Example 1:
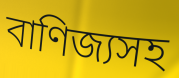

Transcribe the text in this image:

বাণিজ্যসহ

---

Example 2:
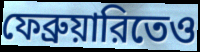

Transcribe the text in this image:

ফেব্রুয়ারিতেও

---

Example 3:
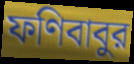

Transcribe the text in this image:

ফণিবাবুর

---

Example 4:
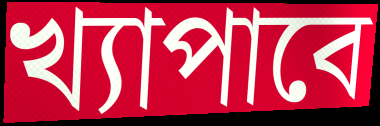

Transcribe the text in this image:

খ্যাপাবে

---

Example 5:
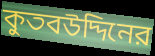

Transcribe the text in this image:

কুতবউদ্দিনের